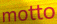
motto